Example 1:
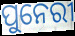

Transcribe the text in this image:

ପୁନେରୀ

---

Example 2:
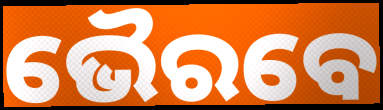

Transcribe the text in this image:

ଭୈରବେ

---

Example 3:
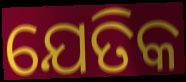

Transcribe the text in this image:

ଯେତିକ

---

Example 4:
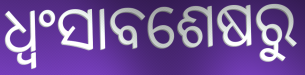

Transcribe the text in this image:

ଧ୍ୱଂସାବଶେଷରୁ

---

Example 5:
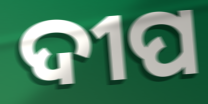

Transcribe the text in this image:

ଦୀପ